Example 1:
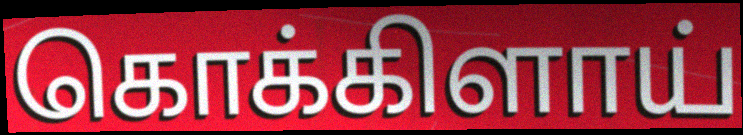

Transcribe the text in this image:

கொக்கிளாய்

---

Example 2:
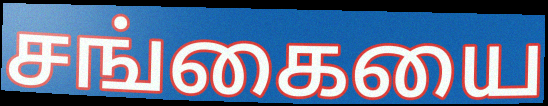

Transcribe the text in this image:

சங்கையை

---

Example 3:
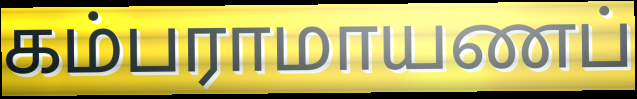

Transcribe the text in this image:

கம்பராமாயணப்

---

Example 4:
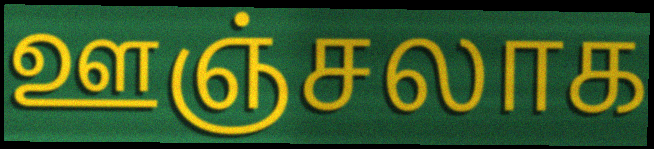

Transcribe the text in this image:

ஊஞ்சலாக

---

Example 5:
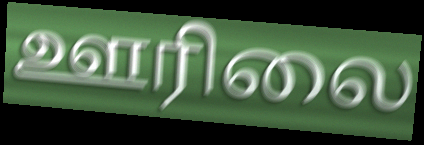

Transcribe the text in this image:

ஊரிலை